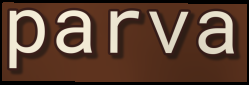
parva